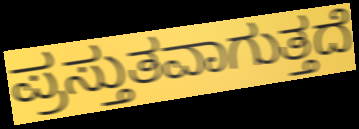
ಪ್ರಸ್ತುತವಾಗುತ್ತದೆ